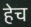
हेच